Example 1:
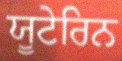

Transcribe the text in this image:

ਯੂਟੇਰਿਨ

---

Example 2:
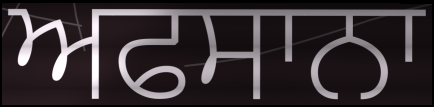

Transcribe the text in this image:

ਅਫਸਾਨਾ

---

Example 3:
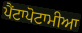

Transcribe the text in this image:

ਪੈਂਟਾਪੋਟਾਮੀਆ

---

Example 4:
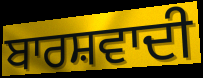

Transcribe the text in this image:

ਬਾਰਸ਼ਵਾਦੀ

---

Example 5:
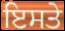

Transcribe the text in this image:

ਇਸਤੇ